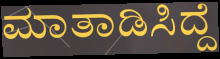
ಮಾತಾಡಿಸಿದ್ದೆ